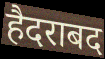
हैदराबद